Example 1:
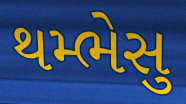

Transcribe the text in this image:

થમ્ભેસુ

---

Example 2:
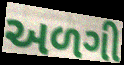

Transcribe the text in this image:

અળગી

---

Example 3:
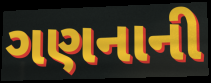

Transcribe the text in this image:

ગણનાની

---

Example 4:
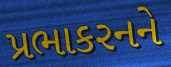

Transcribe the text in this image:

પ્રભાકરનને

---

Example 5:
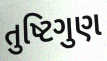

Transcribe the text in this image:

તુષ્ટિગુણ